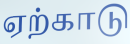
ஏற்காடு